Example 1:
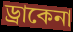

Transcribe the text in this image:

ড্রাকেনা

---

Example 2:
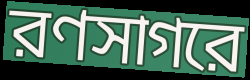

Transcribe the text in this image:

রণসাগরে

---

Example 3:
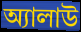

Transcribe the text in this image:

অ্যালাউ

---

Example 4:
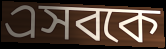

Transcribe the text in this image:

এসবকে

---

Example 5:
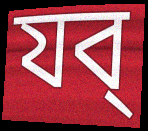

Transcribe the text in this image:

যব্